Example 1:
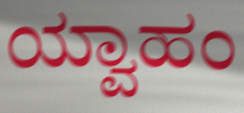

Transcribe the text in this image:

ಯ್ವಾಹಂ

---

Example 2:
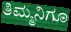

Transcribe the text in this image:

ತಿಮ್ಮನಿಗೂ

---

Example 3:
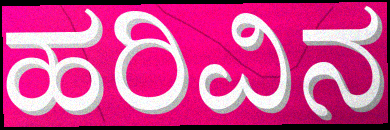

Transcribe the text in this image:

ಹರಿವಿನ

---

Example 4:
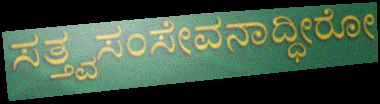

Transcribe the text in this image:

ಸತ್ತ್ವಸಂಸೇವನಾದ್ಧೀರೋ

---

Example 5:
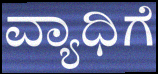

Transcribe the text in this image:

ವ್ಯಾಧಿಗೆ